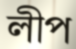
লীপ